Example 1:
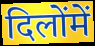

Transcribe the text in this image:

दिलोंमें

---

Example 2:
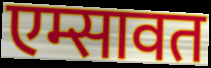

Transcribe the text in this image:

एम्सावत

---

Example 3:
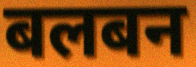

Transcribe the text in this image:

बलबन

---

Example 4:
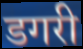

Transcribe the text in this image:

डगरी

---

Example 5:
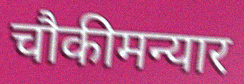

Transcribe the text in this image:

चौकीमन्यार